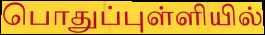
பொதுப்புள்ளியில்